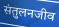
संतुलनजीव